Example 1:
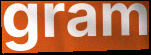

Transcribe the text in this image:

gram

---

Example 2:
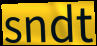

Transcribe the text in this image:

sndt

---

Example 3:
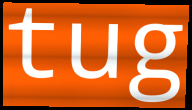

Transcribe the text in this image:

tug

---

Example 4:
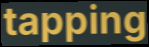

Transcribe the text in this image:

tapping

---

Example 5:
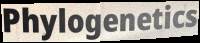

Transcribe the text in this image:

Phylogenetics